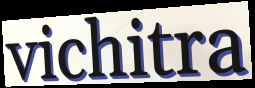
vichitra